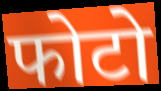
फोटो